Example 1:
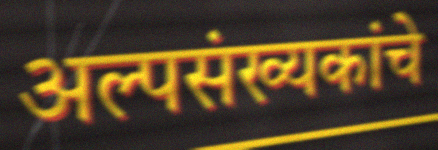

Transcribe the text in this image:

अल्पसंख्यकांचे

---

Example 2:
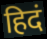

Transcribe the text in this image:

हिदं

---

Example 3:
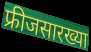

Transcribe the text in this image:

फ्रीजसारख्या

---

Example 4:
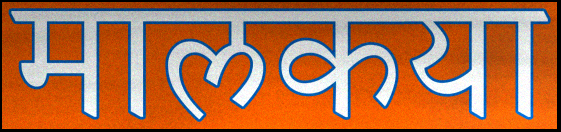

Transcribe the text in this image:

मालकया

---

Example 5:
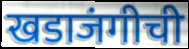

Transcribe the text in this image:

खडाजंगीची